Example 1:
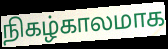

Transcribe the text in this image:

நிகழ்காலமாக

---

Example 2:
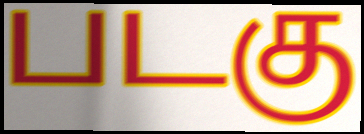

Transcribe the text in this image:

படகு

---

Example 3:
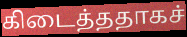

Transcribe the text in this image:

கிடைத்ததாகச்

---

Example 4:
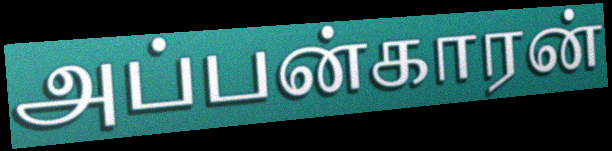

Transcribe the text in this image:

அப்பன்காரன்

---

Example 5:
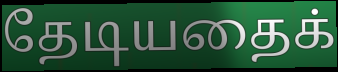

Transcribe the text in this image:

தேடியதைக்